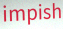
impish